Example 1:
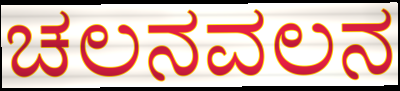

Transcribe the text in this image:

ಚಲನವಲನ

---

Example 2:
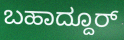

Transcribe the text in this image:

ಬಹಾದ್ದೂರ್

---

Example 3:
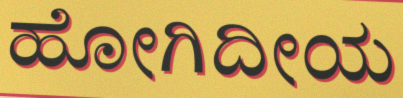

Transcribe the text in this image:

ಹೋಗಿದೀಯ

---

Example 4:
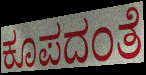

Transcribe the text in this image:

ಕೂಪದಂತೆ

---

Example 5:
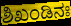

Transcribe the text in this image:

ಶಿಖಂಡಿನಃ